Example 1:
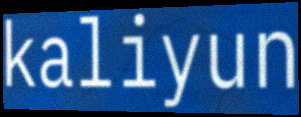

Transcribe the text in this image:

kaliyun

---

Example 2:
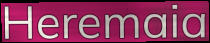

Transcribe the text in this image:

Heremaia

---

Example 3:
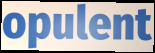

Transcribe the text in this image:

opulent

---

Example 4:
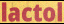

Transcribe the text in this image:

lactol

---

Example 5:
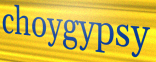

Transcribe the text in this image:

choygypsy